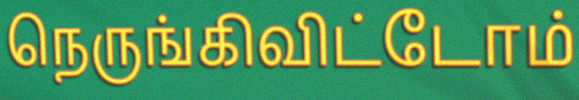
நெருங்கிவிட்டோம்